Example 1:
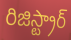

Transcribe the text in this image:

రిజిస్ట్రార్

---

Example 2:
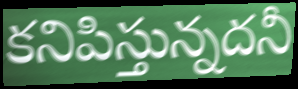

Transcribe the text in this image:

కనిపిస్తున్నదనీ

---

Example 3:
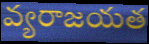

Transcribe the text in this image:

వ్యరాజయత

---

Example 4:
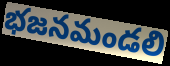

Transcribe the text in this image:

భజనమండలి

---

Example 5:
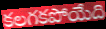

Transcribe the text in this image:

కలగకపోయేది